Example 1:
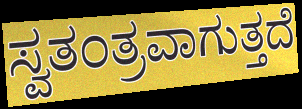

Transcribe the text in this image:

ಸ್ವತಂತ್ರವಾಗುತ್ತದೆ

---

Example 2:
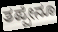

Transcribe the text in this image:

ತಪ್ಪೇನೂ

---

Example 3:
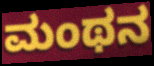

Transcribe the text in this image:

ಮಂಥನ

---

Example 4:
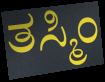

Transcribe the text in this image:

ತಸ್ಮಿಂ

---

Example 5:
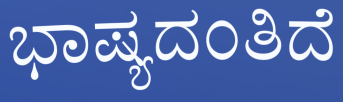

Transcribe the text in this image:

ಭಾಷ್ಯದಂತಿದೆ